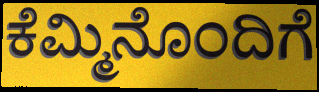
ಕೆಮ್ಮಿನೊಂದಿಗೆ